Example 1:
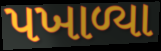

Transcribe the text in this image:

પખાળ્યા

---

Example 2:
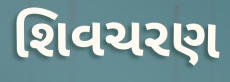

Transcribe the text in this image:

શિવચરણ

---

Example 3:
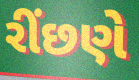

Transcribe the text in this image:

રીંછણે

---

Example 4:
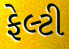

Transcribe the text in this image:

ફેલ્ટી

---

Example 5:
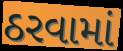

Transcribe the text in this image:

ઠરવામાં